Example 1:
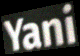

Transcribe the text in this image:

Yani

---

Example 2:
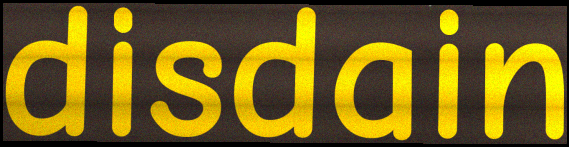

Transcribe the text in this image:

disdain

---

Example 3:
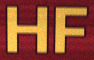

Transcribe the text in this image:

HF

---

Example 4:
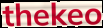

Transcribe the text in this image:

thekeo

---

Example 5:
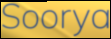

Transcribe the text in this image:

Soorya